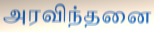
அரவிந்தனை